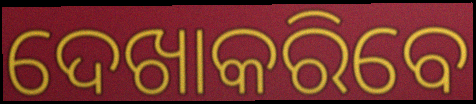
ଦେଖାକରିବେ